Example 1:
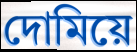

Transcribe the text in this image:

দোমিয়ে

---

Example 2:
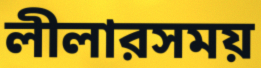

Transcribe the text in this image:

লীলারসময়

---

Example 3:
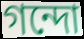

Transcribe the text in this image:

গন্দো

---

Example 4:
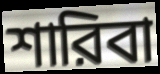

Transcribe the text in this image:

শারিবা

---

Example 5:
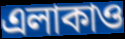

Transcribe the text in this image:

এলাকাও